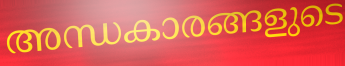
അന്ധകാരങ്ങളുടെ